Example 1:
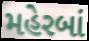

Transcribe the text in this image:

મહેરબાં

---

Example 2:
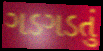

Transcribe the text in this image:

ગડગડતું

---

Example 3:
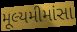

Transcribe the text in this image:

મૂલ્યમીમાંસા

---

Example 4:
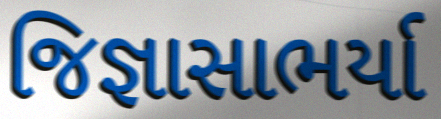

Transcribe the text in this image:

જિજ્ઞાસાભર્યા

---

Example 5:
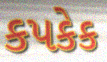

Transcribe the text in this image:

કપકેક